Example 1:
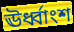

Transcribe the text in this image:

ঊর্ধ্বাংশ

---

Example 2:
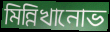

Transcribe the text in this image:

মিন্নিখানোভ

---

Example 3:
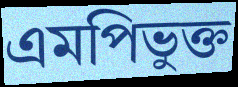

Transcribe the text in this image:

এমপিভুক্ত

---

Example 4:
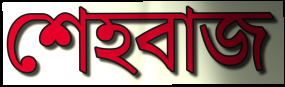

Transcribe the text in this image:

শেহবাজ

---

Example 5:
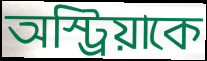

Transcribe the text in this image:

অস্ট্রিয়াকে